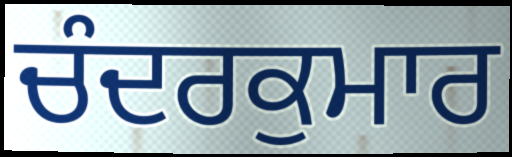
ਚੰਦਰਕੁਮਾਰ